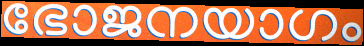
ഭോജനയാഗം